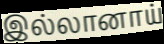
இல்லானாய்